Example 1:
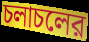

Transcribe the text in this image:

চলাচলের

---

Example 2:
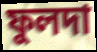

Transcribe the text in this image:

ফুলদা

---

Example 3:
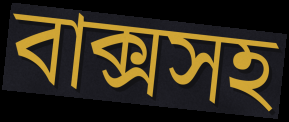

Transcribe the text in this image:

বাক্সসহ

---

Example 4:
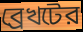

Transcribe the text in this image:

ব্রেখটের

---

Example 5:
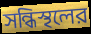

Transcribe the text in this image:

সন্ধিস্থলের